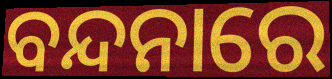
ବନ୍ଦନାରେ